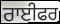
ਰਾਈਫਰ